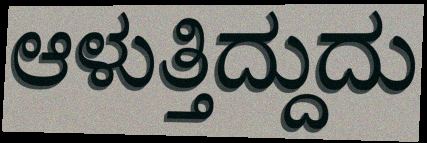
ಆಳುತ್ತಿದ್ದುದು